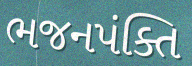
ભજનપંક્તિ